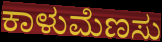
ಕಾಳುಮೆಣಸು